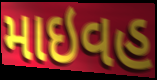
માઇવહ